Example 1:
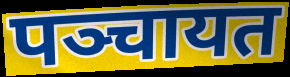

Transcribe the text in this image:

पञ्चायत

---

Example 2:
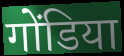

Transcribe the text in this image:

गोंडिया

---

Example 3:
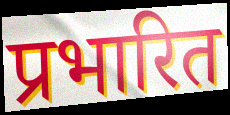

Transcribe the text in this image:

प्रभारित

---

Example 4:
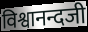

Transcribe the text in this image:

विश्वानन्दजी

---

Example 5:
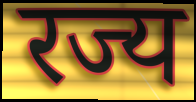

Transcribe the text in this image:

रज्य